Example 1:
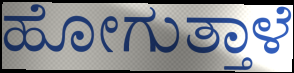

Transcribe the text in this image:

ಹೋಗುತ್ತಾಳೆ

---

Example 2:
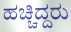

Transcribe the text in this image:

ಹಚ್ಚಿದ್ದರು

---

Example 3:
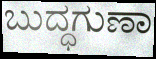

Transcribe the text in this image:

ಬುದ್ಧಗುಣಾ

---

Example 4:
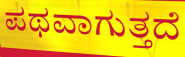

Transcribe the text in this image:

ಪಥವಾಗುತ್ತದೆ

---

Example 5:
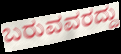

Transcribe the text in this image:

ಬರುವವರದ್ದು